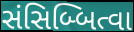
સંસિબ્બિત્વા